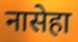
नासेहा